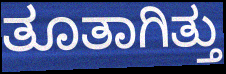
ತೂತಾಗಿತ್ತು